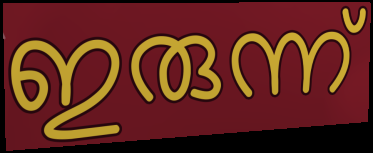
ഇരുന്ന്